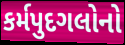
કર્મપુદગલોનો